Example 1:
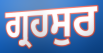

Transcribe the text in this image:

ਗ੍ਰਹਸੁਰ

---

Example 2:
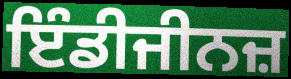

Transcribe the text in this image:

ਇੰਡੀਜੀਨਜ਼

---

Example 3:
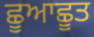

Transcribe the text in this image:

ਛੂਆਛੂਤ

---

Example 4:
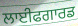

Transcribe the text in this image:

ਲਾਈਫਗਾਰਡ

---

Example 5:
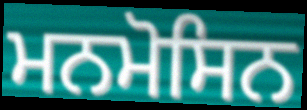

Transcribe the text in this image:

ਮਨਮੋਸਿਨ